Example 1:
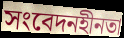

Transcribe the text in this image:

সংবেদনহীনতা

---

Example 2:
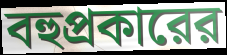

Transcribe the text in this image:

বহুপ্রকারের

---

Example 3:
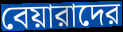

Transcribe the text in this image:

বেয়ারাদের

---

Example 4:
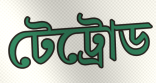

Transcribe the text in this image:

টেট্রোড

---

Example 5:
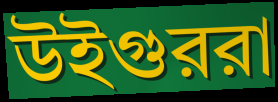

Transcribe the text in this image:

উইগুররা